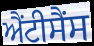
ਐਂਟੀਸੈਂਸ